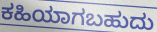
ಕಹಿಯಾಗಬಹುದು